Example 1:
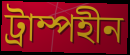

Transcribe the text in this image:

ট্রাম্পহীন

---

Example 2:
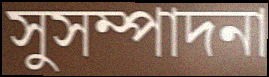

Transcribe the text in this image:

সুসম্পাদনা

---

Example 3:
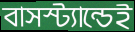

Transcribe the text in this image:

বাসস্ট্যান্ডেই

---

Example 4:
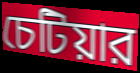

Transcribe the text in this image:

চেটিয়ার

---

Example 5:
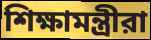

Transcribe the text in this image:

শিক্ষামন্ত্রীরা